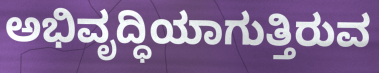
ಅಭಿವೃದ್ಧಿಯಾಗುತ್ತಿರುವ